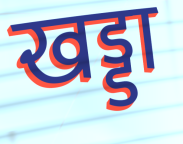
खड्डा